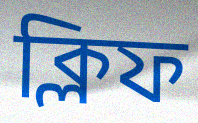
ক্লিফ